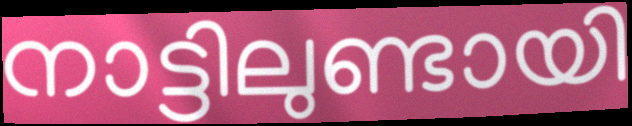
നാട്ടിലുണ്ടായി